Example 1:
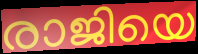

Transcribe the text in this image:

രാജിയെ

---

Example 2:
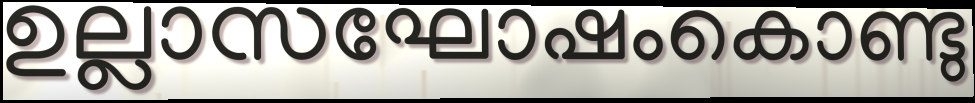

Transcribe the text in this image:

ഉല്ലാസഘോഷംകൊണ്ടു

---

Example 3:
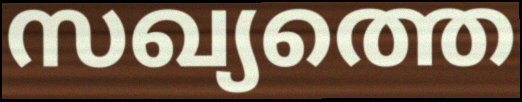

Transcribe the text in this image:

സഖ്യത്തെ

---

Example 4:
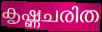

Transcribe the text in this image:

കൃഷ്ണചരിത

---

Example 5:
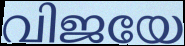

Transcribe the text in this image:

വിജയേ